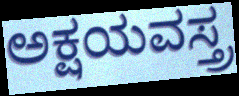
ಅಕ್ಷಯವಸ್ತ್ರ